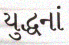
યુદ્ધનાં